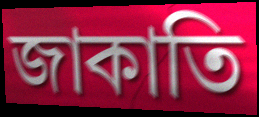
জাকাতি